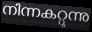
നിന്നകറ്റുന്നു